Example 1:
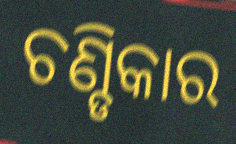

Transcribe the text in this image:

ଚଣ୍ଡିକାର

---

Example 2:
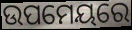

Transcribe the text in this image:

ଉପମେୟରେ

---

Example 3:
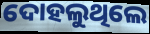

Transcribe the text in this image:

ଦୋହଲୁଥିଲେ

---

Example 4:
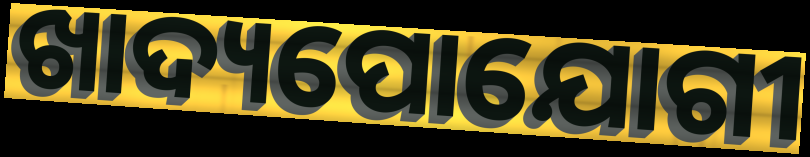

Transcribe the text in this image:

ଖାଦ୍ୟପୋଯୋଗୀ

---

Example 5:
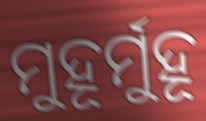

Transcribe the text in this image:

ମୁହୂର୍ମୁହୂ